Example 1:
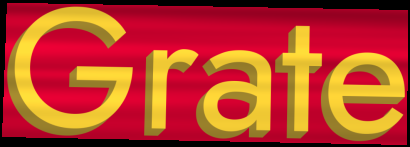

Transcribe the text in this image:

Grate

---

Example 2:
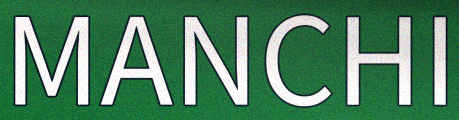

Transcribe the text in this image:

MANCHI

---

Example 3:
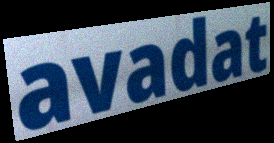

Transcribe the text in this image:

avadat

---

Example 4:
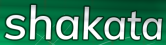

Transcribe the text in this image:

shakata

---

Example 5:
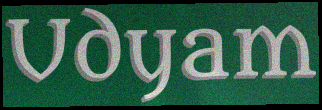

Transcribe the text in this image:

Udyam